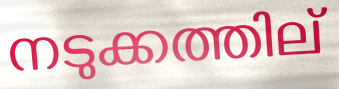
നടുക്കത്തില്